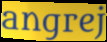
angrej